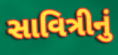
સાવિત્રીનું